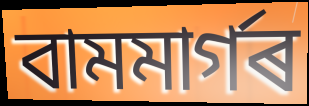
বামমাৰ্গৰ